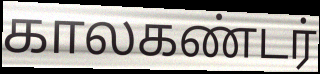
காலகண்டர்